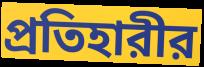
প্রতিহারীর